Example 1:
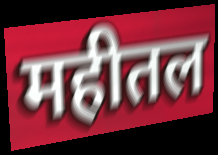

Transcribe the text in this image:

महीतल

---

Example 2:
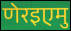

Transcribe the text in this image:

णेरइएमु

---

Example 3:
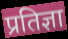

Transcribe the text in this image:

प्रतिज्ञा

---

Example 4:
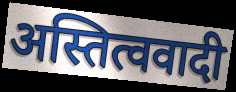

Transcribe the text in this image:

अस्तित्ववादी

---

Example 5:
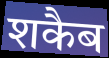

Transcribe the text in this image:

शकैब